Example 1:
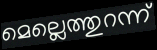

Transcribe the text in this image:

മെല്ലെത്തുറന്ന്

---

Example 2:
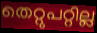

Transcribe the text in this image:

തെറ്റുപറ്റില്ല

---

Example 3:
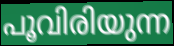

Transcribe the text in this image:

പൂവിരിയുന്ന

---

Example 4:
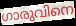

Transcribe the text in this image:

ഗാരുവിനെ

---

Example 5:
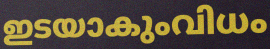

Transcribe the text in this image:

ഇടയാകുംവിധം